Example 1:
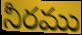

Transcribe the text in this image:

నీరము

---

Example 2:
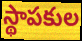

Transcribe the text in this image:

స్థాపకుల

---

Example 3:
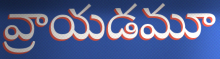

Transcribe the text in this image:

వ్రాయడమూ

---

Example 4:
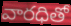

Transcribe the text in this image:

వారధితో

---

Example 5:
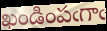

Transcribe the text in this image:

ఖండింపఁగాఁ